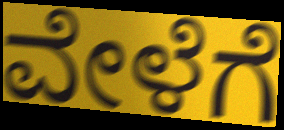
ವೇಳೆಗೆ